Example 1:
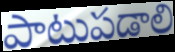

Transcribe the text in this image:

పాటుపడాలి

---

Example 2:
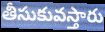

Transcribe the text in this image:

తీసుకువస్తారు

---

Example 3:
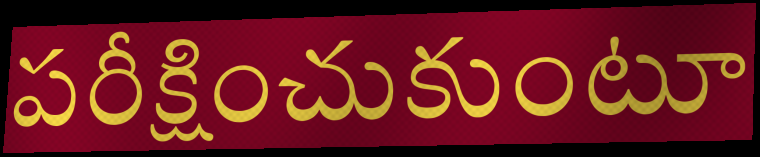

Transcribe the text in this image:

పరీక్షించుకుంటూ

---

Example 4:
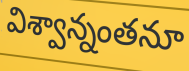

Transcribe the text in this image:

విశ్వాన్నంతనూ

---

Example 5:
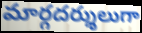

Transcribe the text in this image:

మార్గదర్శులుగా